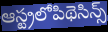
ఆస్ట్రలోపిథెసిన్స్